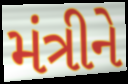
મંત્રીને